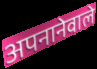
अपनानेवाले